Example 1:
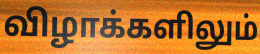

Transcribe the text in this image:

விழாக்களிலும்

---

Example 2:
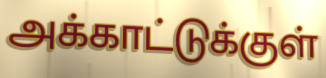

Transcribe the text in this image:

அக்காட்டுக்குள்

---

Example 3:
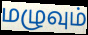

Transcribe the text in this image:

மழுவும்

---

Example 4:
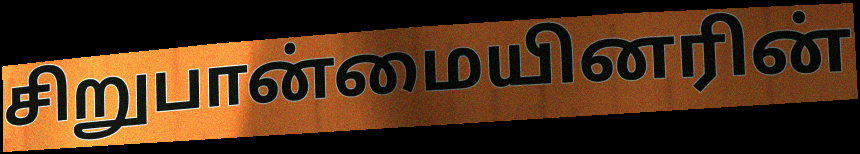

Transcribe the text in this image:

சிறுபான்மையினரின்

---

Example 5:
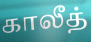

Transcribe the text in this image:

காலீத்